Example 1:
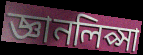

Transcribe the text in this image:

জ্ঞানলিপ্সা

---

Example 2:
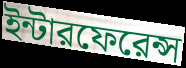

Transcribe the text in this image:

ইন্টারফেরেন্স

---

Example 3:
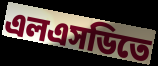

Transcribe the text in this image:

এলএসডিতে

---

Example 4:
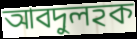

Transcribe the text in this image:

আবদুলহক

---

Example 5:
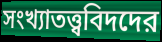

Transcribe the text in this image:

সংখ্যাতত্ত্ববিদদের